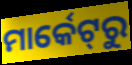
ମାର୍କେଟ୍‌ରୁ